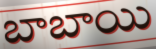
బాబాయి